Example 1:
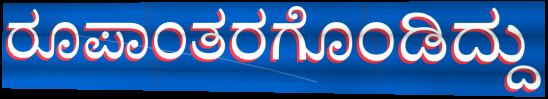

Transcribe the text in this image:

ರೂಪಾಂತರಗೊಂಡಿದ್ದು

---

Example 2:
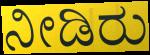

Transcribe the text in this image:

ನೀಡಿರು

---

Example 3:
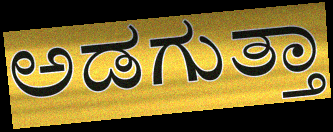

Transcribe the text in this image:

ಅಡಗುತ್ತಾ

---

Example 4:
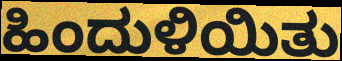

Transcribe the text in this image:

ಹಿಂದುಳಿಯಿತು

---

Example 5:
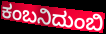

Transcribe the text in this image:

ಕಂಬನಿದುಂಬಿ